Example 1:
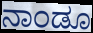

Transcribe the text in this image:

ನಾಂಡೂ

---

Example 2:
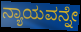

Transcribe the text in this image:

ನ್ಯಾಯವನ್ನೇ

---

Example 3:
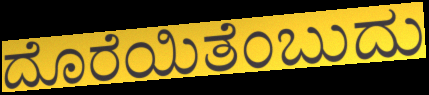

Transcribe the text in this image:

ದೊರೆಯಿತೆಂಬುದು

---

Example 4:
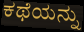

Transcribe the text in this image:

ಕಥೆಯನ್ನು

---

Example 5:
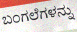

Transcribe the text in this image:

ಬಂಗಲೆಗಳನ್ನು